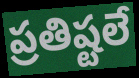
ప్రతిష్టలే